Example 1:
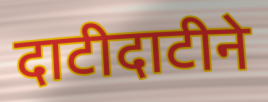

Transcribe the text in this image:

दाटीदाटीने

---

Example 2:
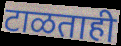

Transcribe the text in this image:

टाळताही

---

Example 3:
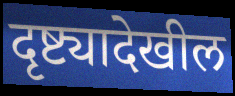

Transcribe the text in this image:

दृष्ट्यादेखील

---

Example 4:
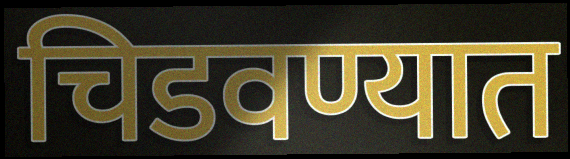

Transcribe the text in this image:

चिडवण्यात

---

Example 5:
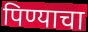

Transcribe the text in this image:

पिण्याचा